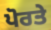
ਪੋਰਤੇ